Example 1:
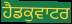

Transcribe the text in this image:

ਹੈਡਕੁਵਾਟਰ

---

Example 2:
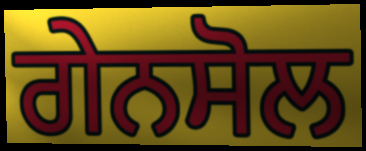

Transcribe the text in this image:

ਗੇਨਸੋਲ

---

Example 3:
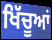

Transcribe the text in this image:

ਖਿੱਚੂਆਂ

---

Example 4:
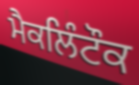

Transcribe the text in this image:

ਮੈਕਲਿੰਟੌਕ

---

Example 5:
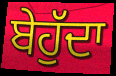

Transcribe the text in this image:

ਬੇਹੁੱਦਾ